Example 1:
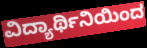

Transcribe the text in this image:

ವಿದ್ಯಾರ್ಥಿನಿಯಿಂದ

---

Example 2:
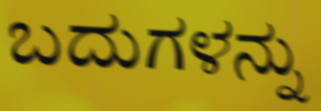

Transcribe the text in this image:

ಬದುಗಳನ್ನು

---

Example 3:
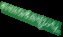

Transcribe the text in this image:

ಕಾಪಾಡಿಕೊಳ್ಳಬಲ್ಲ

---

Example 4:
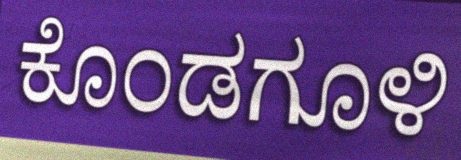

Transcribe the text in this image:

ಕೊಂಡಗೂಳಿ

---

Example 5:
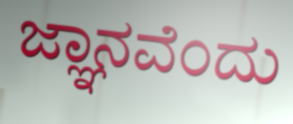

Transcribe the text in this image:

ಜ್ಞಾನವೆಂದು